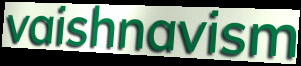
vaishnavism